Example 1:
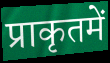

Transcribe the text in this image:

प्राकृतमें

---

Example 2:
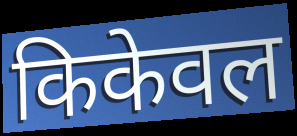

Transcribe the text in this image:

किकेवल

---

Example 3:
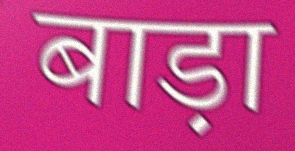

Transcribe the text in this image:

बाड़ा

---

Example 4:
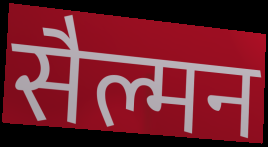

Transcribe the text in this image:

सैल्मन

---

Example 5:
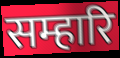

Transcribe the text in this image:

सम्हारि